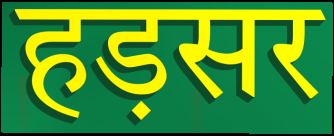
हड़सर